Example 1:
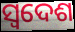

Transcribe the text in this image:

ସ୍ୱଦେଶ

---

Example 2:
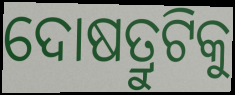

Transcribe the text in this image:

ଦୋଷତ୍ରୁଟିକୁ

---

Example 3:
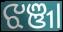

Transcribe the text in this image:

ଝଞ୍ଜା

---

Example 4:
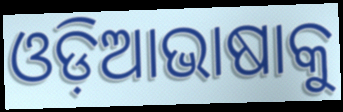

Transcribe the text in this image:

ଓଡ଼ିଆଭାଷାକୁ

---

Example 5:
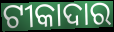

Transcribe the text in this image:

ଟୀକାଦାର